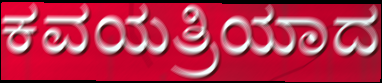
ಕವಯತ್ರಿಯಾದ